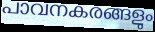
പാവനകരങ്ങളും